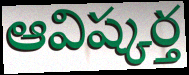
ఆవిష్కర్త